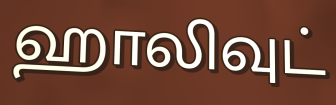
ஹாலிவுட்